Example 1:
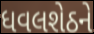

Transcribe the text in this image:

ધવલશેઠને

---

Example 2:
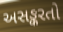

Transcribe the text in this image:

અસઙ્કરતો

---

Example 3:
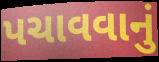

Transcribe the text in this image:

પચાવવાનું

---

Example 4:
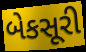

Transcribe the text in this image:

બેકસૂરી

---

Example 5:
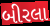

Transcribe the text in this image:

બીરલા